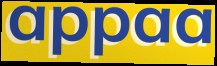
appaa